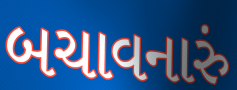
બચાવનારું